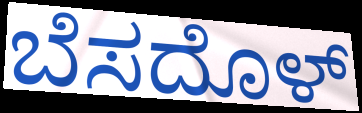
ಬೆಸದೊಳ್